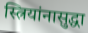
स्त्रियांनासुद्धा